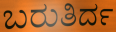
ಬರುತಿರ್ದ